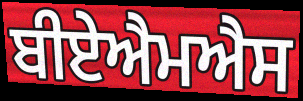
ਬੀਏਐਮਐਸ